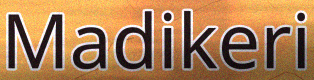
Madikeri